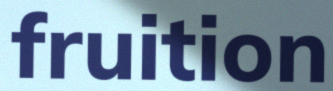
fruition